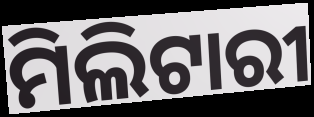
ମିଲିଟାରୀ